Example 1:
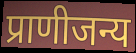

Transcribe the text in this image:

प्राणीजन्य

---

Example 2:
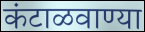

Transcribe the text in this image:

कंटाळवाण्या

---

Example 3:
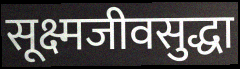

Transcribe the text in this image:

सूक्ष्मजीवसुद्धा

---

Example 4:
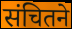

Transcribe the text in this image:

संचितने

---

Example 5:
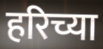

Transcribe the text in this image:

हरिच्या